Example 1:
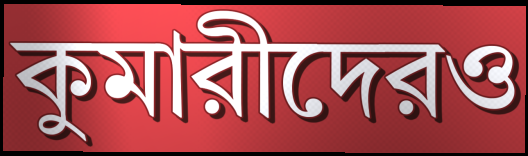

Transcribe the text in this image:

কুমারীদেরও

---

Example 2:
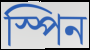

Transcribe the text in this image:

স্পিন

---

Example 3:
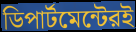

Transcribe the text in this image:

ডিপার্টমেন্টেরই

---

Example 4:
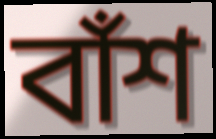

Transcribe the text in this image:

বাঁশ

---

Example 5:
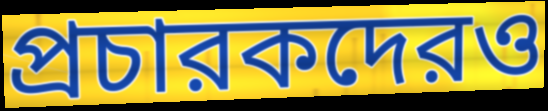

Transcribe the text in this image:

প্রচারকদেরও